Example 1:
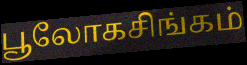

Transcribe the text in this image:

பூலோகசிங்கம்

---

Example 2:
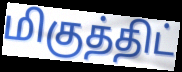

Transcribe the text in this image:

மிகுத்திட்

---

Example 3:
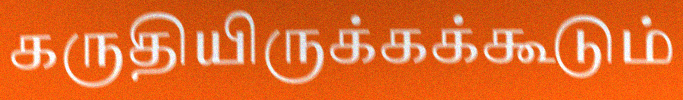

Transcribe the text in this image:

கருதியிருக்கக்கூடும்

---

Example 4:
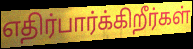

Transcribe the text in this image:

எதிர்பார்க்கிறீர்கள்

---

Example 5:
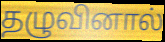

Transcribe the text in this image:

தழுவினால்